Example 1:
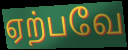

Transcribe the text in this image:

ஏற்பவே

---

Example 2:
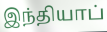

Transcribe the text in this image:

இந்தியாப்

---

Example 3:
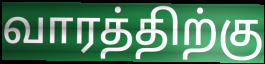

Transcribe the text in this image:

வாரத்திற்கு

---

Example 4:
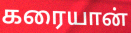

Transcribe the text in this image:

கரையான்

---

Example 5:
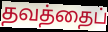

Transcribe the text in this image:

தவத்தைப்